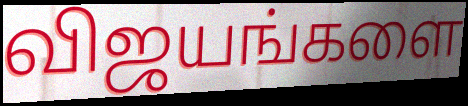
விஜயங்களை